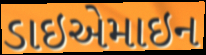
ડાઇએમાઇન